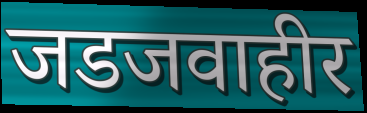
जडजवाहीर